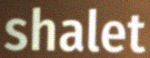
shalet